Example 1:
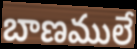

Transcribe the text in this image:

బాణములే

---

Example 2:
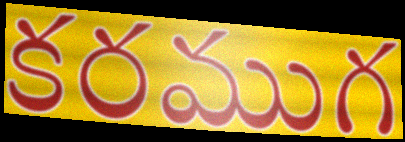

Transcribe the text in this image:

కరముగ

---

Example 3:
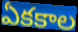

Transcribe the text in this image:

ఏకకాల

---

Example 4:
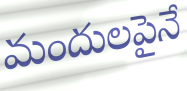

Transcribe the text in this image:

మందులపైనే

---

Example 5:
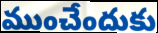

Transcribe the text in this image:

ముంచేందుకు